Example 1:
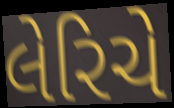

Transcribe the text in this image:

લેરિચે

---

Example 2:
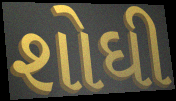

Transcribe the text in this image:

શોઘી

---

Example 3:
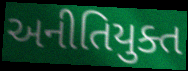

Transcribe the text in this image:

અનીતિયુક્ત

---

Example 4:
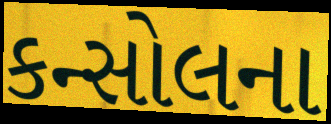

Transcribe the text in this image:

કન્સોલના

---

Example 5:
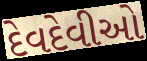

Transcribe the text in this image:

દેવદેવીઓ